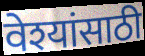
वेश्यांसाठी